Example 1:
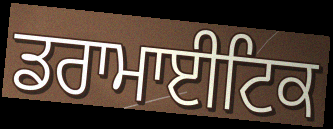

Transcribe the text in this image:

ਡਰਾਮਾਈਟਿਕ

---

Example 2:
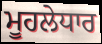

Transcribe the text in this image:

ਮੂਹਲੇਧਾਰ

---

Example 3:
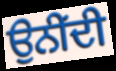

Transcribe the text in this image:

ਉਨੀਂਦੀ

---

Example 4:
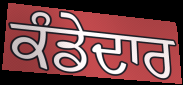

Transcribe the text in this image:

ਕੰਡੇਦਾਰ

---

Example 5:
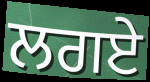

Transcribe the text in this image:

ਲਗਏ